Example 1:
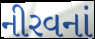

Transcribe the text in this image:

નીરવનાં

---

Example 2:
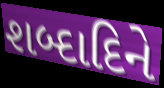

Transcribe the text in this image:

શબ્દાદિને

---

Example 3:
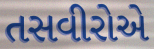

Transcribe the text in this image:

તસવીરોએ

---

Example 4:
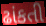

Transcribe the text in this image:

ઢાંકતી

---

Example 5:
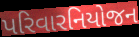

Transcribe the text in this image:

પરિવારનિયોજન